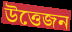
উত্তেজন